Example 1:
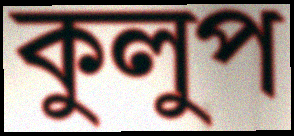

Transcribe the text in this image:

কুলুপ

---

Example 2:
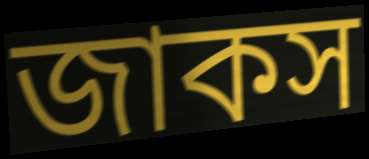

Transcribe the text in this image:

জাকস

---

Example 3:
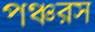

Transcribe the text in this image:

পঞ্চরস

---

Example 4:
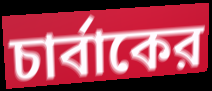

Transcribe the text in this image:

চার্বাকের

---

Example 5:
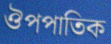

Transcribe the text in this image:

ঔপপাতিক